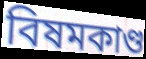
বিষমকাণ্ড